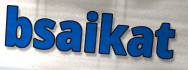
bsaikat